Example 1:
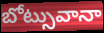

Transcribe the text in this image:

బోట్సువానా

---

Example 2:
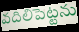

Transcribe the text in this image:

వదిలిపెట్టను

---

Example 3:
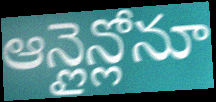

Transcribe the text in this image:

ఆన్లైన్లోనూ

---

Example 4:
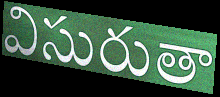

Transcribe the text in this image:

విసురుతా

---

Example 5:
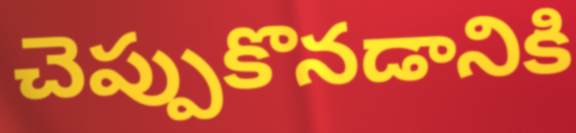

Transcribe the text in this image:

చెప్పుకొనడానికి